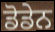
ਡੋਡੇਨ